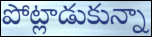
పోట్లాడుకున్నా